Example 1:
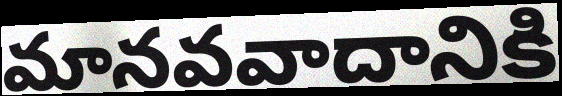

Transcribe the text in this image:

మానవవాదానికి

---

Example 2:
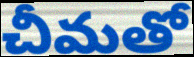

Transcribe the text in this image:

చీమతో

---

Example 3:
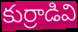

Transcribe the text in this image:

కుర్రాడివి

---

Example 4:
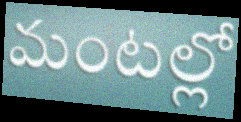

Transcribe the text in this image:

మంటల్లో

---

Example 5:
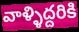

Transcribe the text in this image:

వాళ్ళిద్దరికి